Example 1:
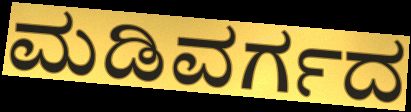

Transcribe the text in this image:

ಮಡಿವರ್ಗದ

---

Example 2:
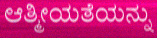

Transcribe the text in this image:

ಆತ್ಮೀಯತೆಯನ್ನು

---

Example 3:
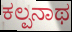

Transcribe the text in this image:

ಕಲ್ಪನಾಥ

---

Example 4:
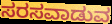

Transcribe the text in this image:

ಸರಸವಾಡುವ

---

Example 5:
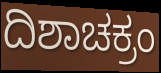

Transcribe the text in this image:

ದಿಶಾಚಕ್ರಂ